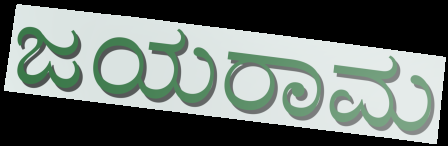
ಜಯರಾಮ